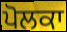
ਪੋਲਕਾ